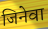
जिनेवा